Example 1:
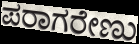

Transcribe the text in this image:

ಪರಾಗರೇಣು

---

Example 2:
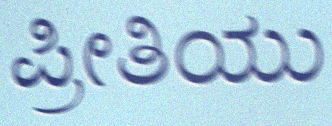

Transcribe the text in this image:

ಪ್ರೀತಿಯು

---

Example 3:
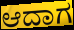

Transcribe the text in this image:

ಆದಾಗ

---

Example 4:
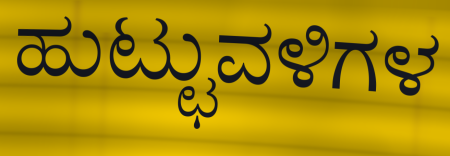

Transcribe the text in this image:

ಹುಟ್ಟುವಳಿಗಳ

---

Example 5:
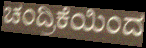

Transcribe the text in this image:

ಚಂದ್ರಿಕೆಯಿಂದ